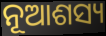
ନୂଆଶସ୍ୟ